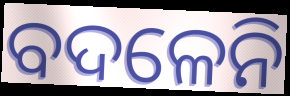
ବଦଳେନି